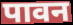
पावन